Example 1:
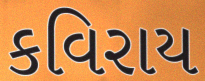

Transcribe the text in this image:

કવિરાય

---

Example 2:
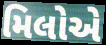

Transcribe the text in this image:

મિલોએ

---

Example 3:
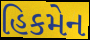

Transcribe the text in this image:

હિકમેન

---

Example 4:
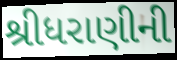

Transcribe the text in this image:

શ્રીધરાણીની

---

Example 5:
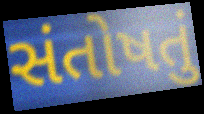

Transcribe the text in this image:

સંતોષતું